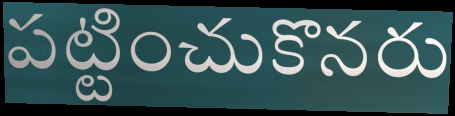
పట్టించుకొనరు